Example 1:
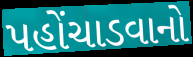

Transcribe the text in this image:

પહોંચાડવાનો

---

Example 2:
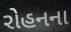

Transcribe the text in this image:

રોહનના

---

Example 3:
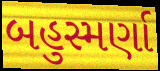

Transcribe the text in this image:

બહુસ્મર્ણા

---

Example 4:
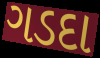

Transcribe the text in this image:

ગડદા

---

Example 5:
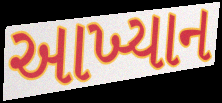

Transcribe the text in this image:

આખ્યાન